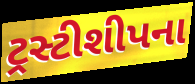
ટ્રસ્ટીશીપના